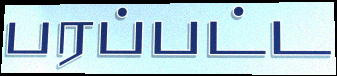
பரப்பட்ட